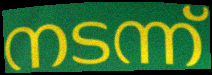
നടന്ന്